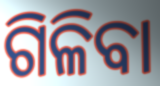
ଗିଳିବା